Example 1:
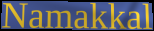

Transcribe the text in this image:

Namakkal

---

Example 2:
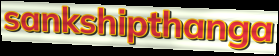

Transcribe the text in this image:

sankshipthanga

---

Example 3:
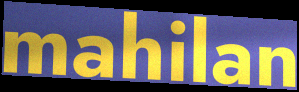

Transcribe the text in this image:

mahilan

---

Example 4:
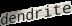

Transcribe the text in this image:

dendrite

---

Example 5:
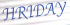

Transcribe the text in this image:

HRIDAY